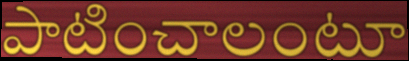
పాటించాలంటూ